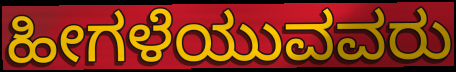
ಹೀಗಳೆಯುವವರು